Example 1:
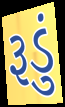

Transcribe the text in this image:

રૂડું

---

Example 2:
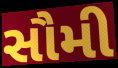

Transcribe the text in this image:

સૌમી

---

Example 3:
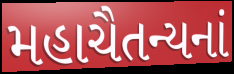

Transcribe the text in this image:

મહાચૈતન્યનાં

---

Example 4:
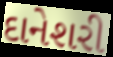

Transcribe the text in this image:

દાનેશરી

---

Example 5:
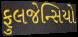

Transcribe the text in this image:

ફુલજેન્સિયો